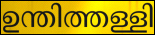
ഉന്തിത്തള്ളി